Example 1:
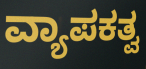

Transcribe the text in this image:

ವ್ಯಾಪಕತ್ವ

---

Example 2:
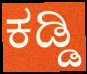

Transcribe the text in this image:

ಕಡ್ಡಿ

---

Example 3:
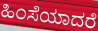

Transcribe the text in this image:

ಹಿಂಸೆಯಾದರೆ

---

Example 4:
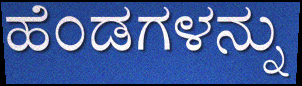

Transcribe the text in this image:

ಹೆಂಡಗಳನ್ನು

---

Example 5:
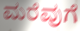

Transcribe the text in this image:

ಮರೆವುಗೆ